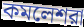
কমলেশরা